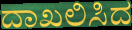
ದಾಖಲಿಸಿದ